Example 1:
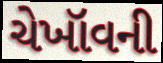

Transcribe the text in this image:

ચેખૉવની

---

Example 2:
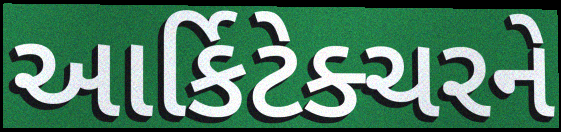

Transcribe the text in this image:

આર્કિટેક્ચરને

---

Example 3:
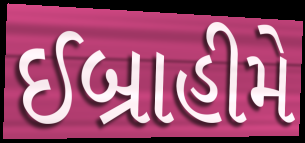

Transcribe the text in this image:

ઈબ્રાહીમે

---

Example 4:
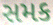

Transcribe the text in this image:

સમક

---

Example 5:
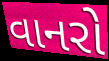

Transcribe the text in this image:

વાનરો